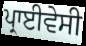
ਪ੍ਰਾਈਵੇਸੀ